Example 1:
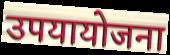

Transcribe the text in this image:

उपयायोजना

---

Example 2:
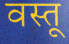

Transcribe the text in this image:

वस्तू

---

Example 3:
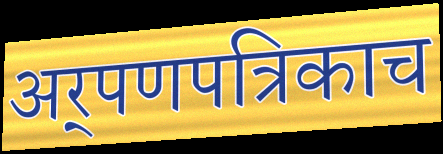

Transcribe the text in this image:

अर्पणपत्रिकाच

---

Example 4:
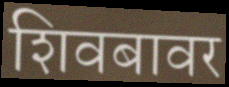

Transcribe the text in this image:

शिवबावर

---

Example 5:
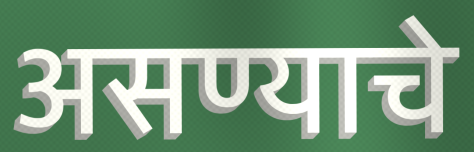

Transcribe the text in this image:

असण्याचे